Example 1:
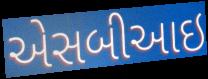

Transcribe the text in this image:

એસબીઆઇ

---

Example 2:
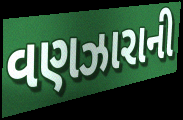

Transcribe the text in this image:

વણઝારાની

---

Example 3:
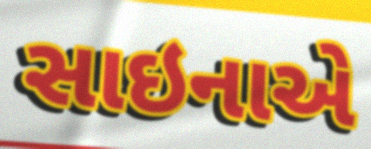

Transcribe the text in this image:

સાઇનાએ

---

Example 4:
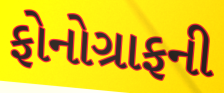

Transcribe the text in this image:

ફોનોગ્રાફની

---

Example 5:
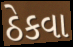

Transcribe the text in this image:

ઠેકવા